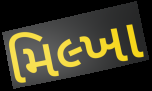
મિલ્ખા